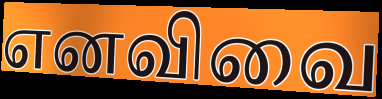
எனவிவை